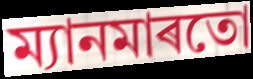
ম্যানমাৰতো